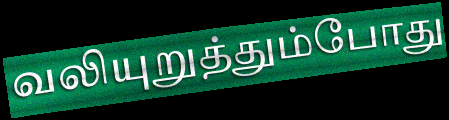
வலியுறுத்தும்போது